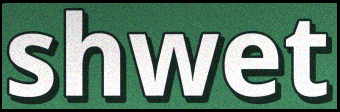
shwet